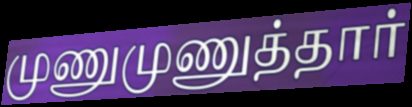
முணுமுணுத்தார்